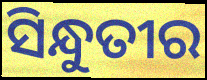
ସିନ୍ଧୁତୀର